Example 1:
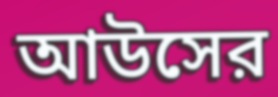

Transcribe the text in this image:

আউসের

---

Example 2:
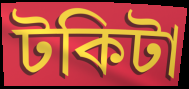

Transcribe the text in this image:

টকিটা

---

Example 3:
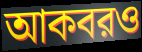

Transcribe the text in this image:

আকবরও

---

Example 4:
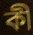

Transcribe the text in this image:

কী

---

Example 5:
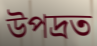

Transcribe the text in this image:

উপদ্রত